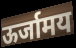
ऊर्जामय